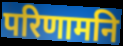
परिणामनि